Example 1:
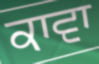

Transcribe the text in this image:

ਕਾਵਾ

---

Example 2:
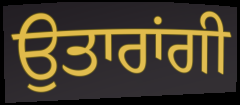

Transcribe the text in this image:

ਉਤਾਰਾਂਗੀ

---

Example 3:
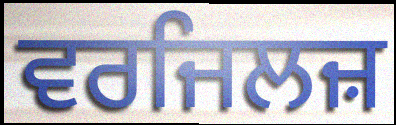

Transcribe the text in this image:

ਵਰਜਿਲਜ਼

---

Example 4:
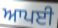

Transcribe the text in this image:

ਆਪਈ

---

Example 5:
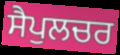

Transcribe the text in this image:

ਸੈਪੁਲਚਰ